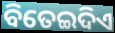
ବିତେଇଦିଏ